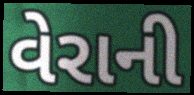
વેરાની